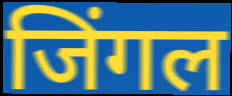
जिंगल